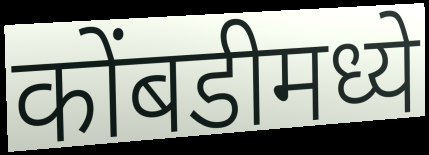
कोंबडीमध्ये